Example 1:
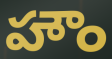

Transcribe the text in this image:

హౌం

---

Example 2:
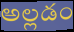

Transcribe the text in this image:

అల్లడం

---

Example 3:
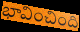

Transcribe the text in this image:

భావించింది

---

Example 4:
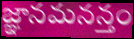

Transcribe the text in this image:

జ్ఞానమనన్తం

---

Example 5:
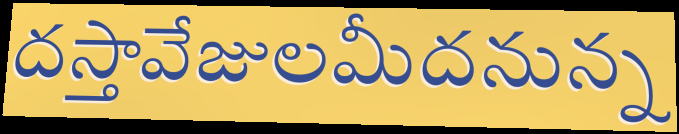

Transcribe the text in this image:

దస్తావేజులమీదనున్న